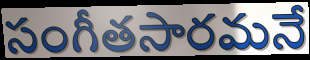
సంగీతసారమనే